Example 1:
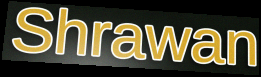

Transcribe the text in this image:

Shrawan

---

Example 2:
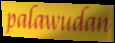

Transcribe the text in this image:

palawudan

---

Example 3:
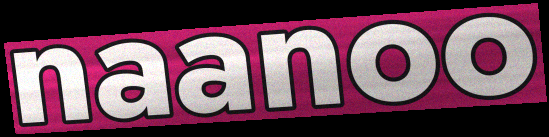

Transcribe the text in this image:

naanoo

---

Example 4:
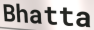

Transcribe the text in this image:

Bhatta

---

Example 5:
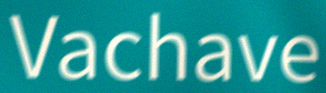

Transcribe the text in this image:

Vachave